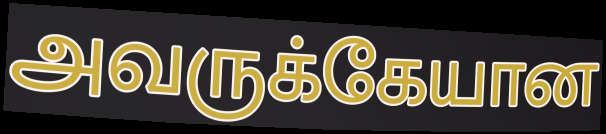
அவருக்கேயான